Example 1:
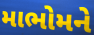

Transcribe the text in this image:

માભોમને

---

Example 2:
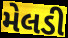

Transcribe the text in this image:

મેલડી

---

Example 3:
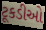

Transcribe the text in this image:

ટૂકડીઓ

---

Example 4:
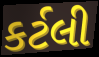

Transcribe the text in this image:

કર્ટલી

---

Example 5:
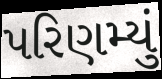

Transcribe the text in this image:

પરિણમ્યું